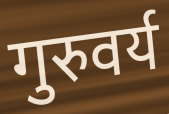
गुरुवर्य